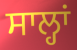
ਸਾਲ੍ਹਾਂ